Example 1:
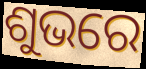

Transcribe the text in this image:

ଶୁଭରେ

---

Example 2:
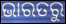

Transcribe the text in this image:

ଭାରତରୁ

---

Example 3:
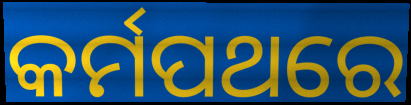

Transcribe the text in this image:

କର୍ମପଥରେ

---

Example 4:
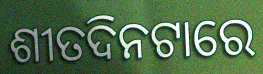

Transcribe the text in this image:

ଶୀତଦିନଟାରେ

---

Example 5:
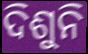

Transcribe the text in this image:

ଦିଶୁନି